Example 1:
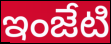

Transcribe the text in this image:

ఇంజేటి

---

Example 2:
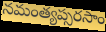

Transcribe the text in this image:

నమంత్యప్సరసాం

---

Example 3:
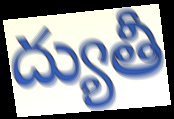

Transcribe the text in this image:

ద్యుతీ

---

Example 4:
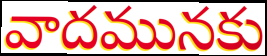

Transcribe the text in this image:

వాదమునకు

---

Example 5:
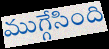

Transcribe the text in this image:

ముగ్గేసింది